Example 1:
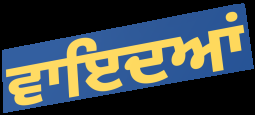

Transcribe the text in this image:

ਵਾਇਦਆਂ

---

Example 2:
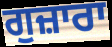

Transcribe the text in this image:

ਗੁਜ਼ਾਰਾ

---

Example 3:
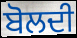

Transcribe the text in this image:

ਬੋਲਦੀ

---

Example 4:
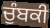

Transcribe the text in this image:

ਚੁੰਬਕੀ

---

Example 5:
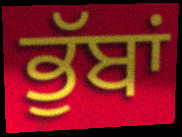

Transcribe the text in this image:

ਭੁੱਬਾਂ